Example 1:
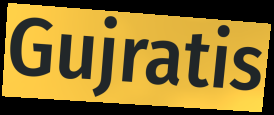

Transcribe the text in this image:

Gujratis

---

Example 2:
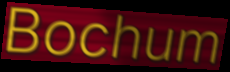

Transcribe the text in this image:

Bochum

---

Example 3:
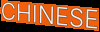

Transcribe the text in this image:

CHINESE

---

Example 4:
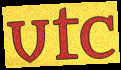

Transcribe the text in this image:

utc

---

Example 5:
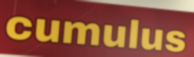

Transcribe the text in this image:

cumulus